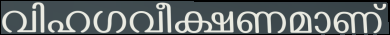
വിഹഗവീക്ഷണമാണ്